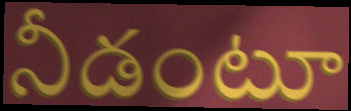
నీడంటూ